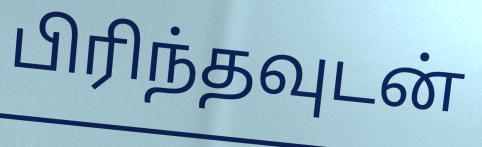
பிரிந்தவுடன்